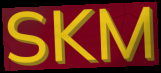
SKM